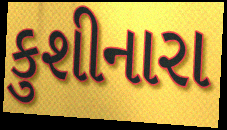
કુશીનારા